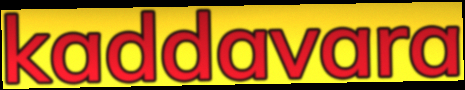
kaddavara